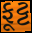
ફૂટ્ટ